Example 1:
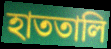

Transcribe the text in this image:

হাততালি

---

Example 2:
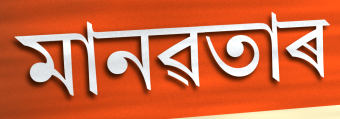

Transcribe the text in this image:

মানৱতাৰ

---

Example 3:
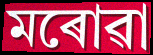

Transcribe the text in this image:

মৰোৱা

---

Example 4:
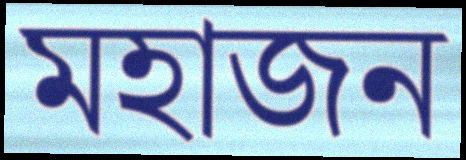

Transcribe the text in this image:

মহাজন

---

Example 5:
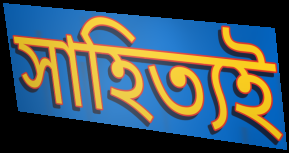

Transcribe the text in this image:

সাহিত্যই